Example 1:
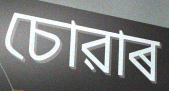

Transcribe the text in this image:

চোৱাৰ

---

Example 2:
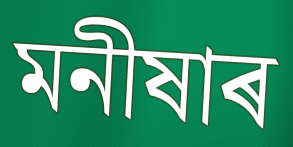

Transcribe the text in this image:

মনীষাৰ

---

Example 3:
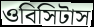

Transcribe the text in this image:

ওবিসিটাস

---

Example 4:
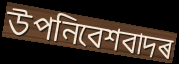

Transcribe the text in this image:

উপনিবেশবাদৰ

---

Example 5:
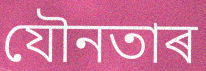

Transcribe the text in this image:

যৌনতাৰ